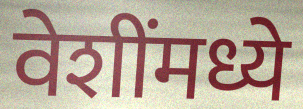
वेशींमध्ये